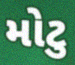
મોટુ